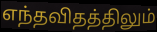
எந்தவிதத்திலும்